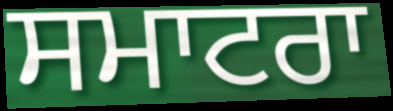
ਸਮਾਟਰਾ